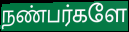
நண்பர்களே